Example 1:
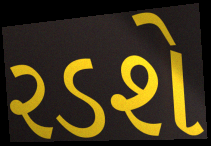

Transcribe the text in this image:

રડશે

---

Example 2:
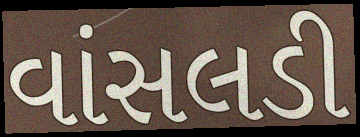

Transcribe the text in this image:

વાંસલડી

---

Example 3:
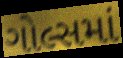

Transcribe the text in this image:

ગોલ્સમાં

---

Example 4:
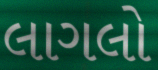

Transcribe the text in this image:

લાગલો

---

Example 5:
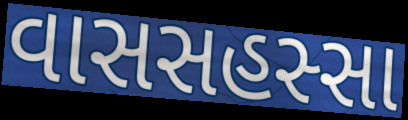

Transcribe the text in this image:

વાસસહસ્સા